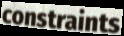
constraints